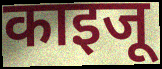
काइजू